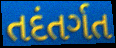
તદંતર્ગત